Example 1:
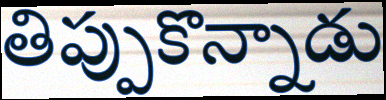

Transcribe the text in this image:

తిప్పుకొన్నాడు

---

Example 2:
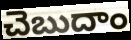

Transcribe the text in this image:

చెబుదాం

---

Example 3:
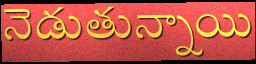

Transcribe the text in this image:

నెడుతున్నాయి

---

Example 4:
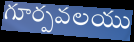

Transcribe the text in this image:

గూర్పవలయు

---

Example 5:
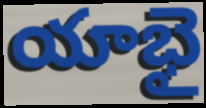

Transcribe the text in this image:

యాభై